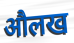
औलख